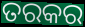
ତରକର